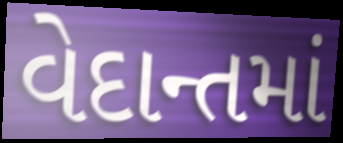
વેદાન્તમાં